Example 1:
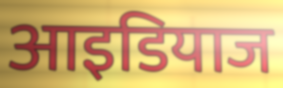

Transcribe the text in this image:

आइडियाज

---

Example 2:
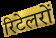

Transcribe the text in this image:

रिटेलरों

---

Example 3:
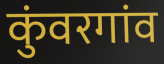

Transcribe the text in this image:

कुंवरगांव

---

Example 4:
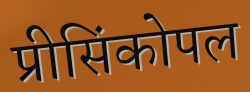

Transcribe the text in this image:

प्रीसिंकोपल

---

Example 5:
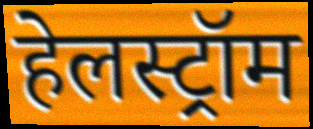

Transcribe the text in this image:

हेलस्ट्रॉम